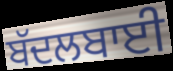
ਬੱਦਲਬਾਈ